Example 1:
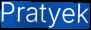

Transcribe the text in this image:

Pratyek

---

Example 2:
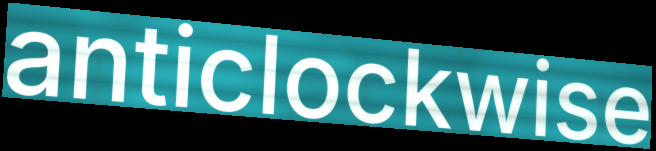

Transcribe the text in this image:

anticlockwise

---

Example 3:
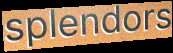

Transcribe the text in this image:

splendors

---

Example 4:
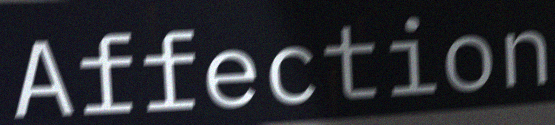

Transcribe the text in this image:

Affection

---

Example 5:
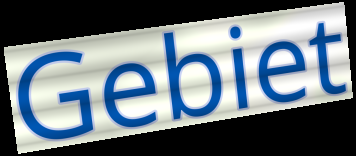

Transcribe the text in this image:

Gebiet